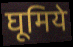
घूमिये